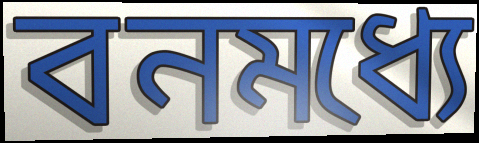
বনমধ্যে